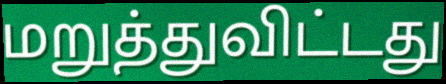
மறுத்துவிட்டது